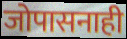
जोपासनाही